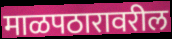
माळपठारावरील